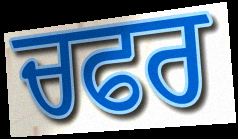
ਚਫਰ